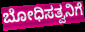
ಬೋಧಿಸತ್ವನಿಗೆ